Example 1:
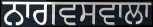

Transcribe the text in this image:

ਨਾਗਵਸਵਾਲਾ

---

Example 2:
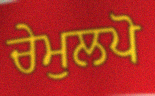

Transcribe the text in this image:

ਚੇਮੁਲਪੋ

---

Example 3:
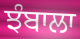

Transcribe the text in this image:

ਝੰਬਾਲਾ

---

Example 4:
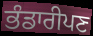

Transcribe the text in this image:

ਭੰਡਾਰੀਪਣ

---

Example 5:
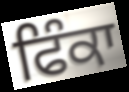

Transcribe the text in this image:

ਫਿੰਕਾ